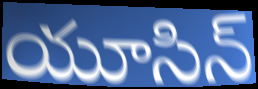
యూసిన్